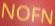
NOFN